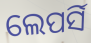
ଲେପର୍ସି